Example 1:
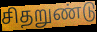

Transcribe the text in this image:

சிதறுண்டு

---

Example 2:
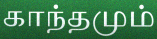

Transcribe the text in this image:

காந்தமும்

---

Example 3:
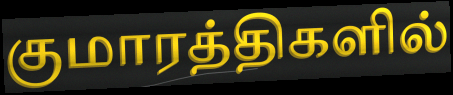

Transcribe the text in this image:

குமாரத்திகளில்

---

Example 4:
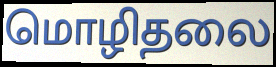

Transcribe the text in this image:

மொழிதலை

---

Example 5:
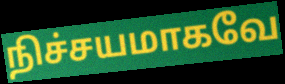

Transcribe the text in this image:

நிச்சயமாகவே